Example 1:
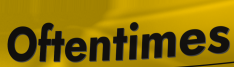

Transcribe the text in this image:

Oftentimes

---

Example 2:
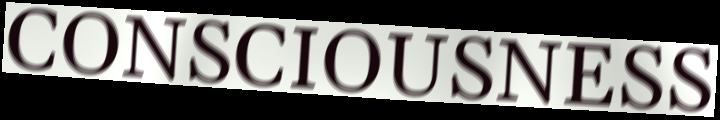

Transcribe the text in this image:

CONSCIOUSNESS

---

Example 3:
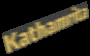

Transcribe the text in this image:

Kathamrita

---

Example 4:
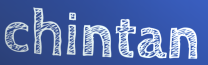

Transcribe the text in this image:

chintan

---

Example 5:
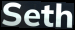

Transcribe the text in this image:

Seth